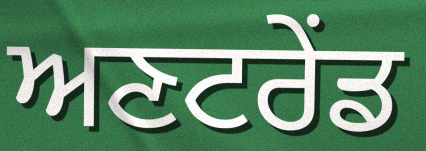
ਅਣਟਰੇਂਡ